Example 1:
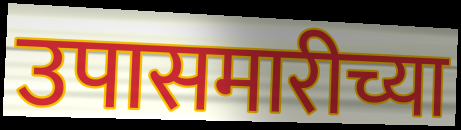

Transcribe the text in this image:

उपासमारीच्या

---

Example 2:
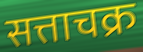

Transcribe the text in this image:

सत्ताचक्र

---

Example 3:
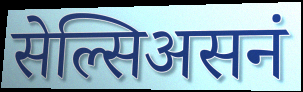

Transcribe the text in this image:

सेल्सिअसनं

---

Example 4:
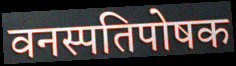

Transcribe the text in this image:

वनस्पतिपोषक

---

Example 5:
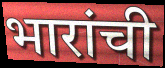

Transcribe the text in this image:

भारांची